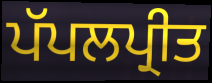
ਪੱਪਲਪ੍ਰੀਤ